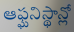
ఆఫ్ఘనిస్థాన్లో